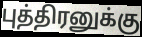
புத்திரனுக்கு